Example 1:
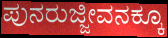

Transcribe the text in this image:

ಪುನರುಜ್ಜೀವನಕ್ಕೂ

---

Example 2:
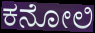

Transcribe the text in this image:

ಕನೋಲಿ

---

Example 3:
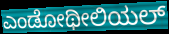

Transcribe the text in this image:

ಎಂಡೋಥೀಲಿಯಲ್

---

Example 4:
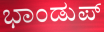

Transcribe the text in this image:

ಭಾಂಡುಪ್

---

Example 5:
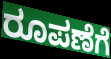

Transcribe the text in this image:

ರೂಪಣೆಗೆ